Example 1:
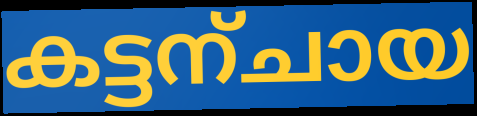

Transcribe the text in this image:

കട്ടന്ചായ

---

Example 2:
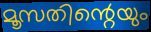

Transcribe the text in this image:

മൂസതിന്റെയും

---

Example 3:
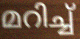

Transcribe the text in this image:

മറിച്ച്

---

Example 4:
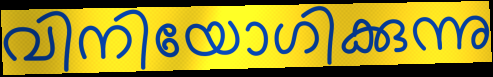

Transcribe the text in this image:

വിനിയോഗിക്കുന്നു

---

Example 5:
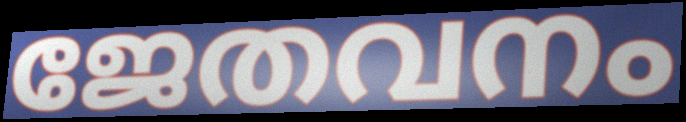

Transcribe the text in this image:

ജേതവനം